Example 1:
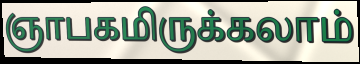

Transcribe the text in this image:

ஞாபகமிருக்கலாம்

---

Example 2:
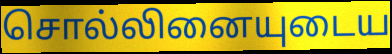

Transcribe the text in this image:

சொல்லினையுடைய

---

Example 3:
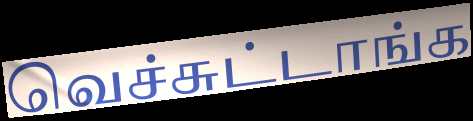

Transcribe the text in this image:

வெச்சுட்டாங்க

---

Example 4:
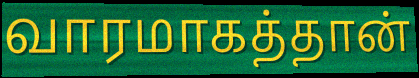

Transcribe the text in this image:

வாரமாகத்தான்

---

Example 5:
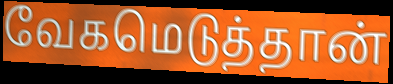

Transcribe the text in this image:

வேகமெடுத்தான்